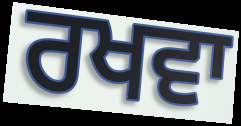
ਰਖਵਾ